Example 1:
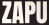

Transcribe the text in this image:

ZAPU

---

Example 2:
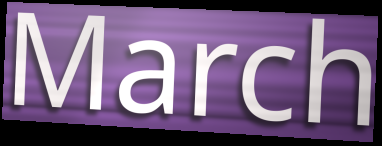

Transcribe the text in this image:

March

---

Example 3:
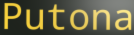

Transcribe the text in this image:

Putona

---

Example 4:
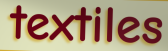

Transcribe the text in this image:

textiles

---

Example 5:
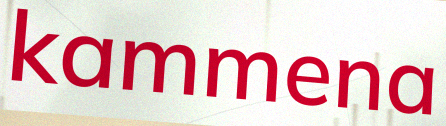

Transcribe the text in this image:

kammena